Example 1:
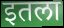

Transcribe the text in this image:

इतला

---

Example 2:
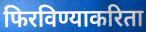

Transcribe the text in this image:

फिरविण्याकरिता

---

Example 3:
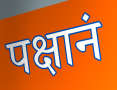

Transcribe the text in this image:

पक्षानं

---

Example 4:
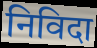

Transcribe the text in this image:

निविदा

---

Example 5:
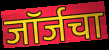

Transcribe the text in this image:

जॉर्जचा